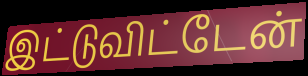
இட்டுவிட்டேன்